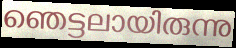
ഞെട്ടലായിരുന്നു